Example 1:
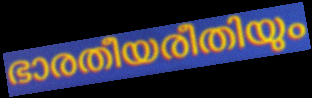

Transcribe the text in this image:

ഭാരതീയരീതിയും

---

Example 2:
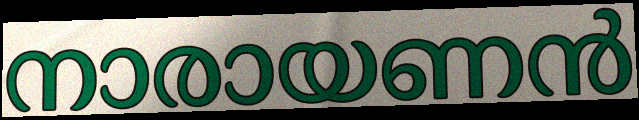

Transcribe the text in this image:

നാരായണൻ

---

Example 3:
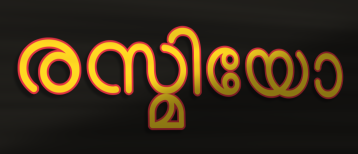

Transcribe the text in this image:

രസ്മിയോ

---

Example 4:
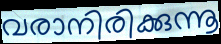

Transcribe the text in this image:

വരാനിരിക്കുന്നൂ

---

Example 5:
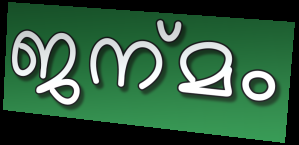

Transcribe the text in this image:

ജന്‌മം